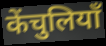
केंचुलियाँ